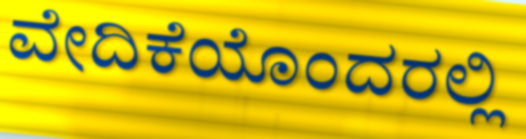
ವೇದಿಕೆಯೊಂದರಲ್ಲಿ